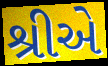
શ્રીએ